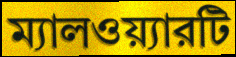
ম্যালওয়্যারটি